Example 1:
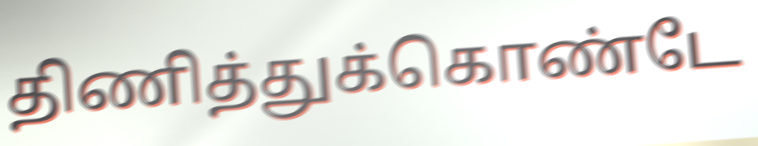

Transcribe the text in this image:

திணித்துக்கொண்டே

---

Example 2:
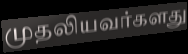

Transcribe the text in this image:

முதலியவர்களது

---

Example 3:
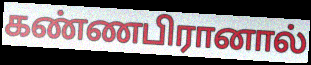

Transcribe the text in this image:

கண்ணபிரானால்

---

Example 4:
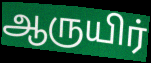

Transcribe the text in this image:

ஆருயிர்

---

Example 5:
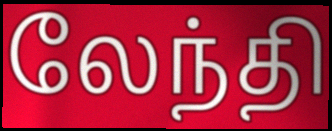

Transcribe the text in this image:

லேந்தி